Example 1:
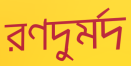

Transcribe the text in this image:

রণদুর্মদ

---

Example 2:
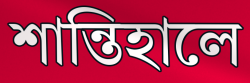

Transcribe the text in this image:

শান্তিহালে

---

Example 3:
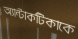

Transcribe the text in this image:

অ্যান্টার্কটিকাকে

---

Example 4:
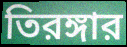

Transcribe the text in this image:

তিরঙ্গার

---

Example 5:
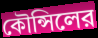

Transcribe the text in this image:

কৌন্সিলের